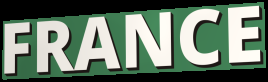
FRANCE